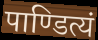
पाण्डित्यं